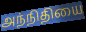
அந்நிதியை